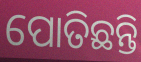
ପୋତିଛନ୍ତି